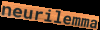
neurilemma